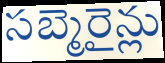
సబ్మెరైన్లు